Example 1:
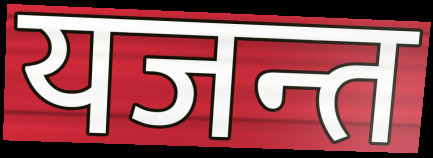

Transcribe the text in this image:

यजन्त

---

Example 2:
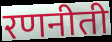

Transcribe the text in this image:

रणनीती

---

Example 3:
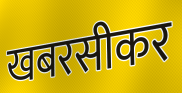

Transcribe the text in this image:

खबरसीकर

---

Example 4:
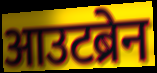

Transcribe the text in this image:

आउटब्रेन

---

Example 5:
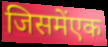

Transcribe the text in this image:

जिसमेंएक